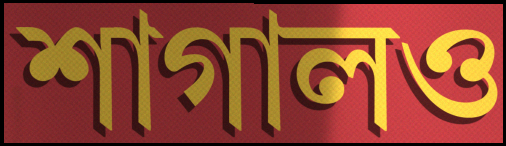
শাগালও